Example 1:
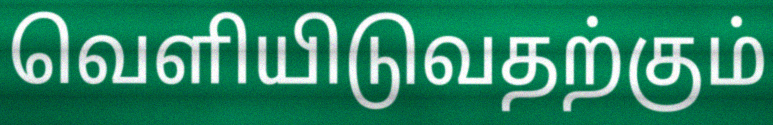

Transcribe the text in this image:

வெளியிடுவதற்கும்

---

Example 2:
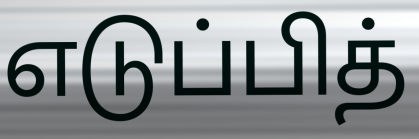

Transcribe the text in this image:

எடுப்பித்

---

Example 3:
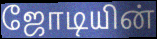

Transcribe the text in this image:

ஜோடியின்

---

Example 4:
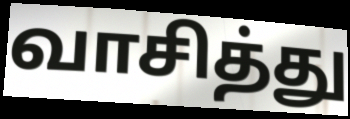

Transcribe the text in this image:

வாசித்து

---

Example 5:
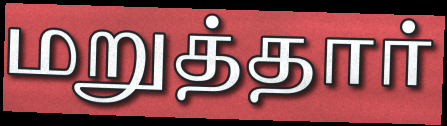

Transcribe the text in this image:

மறுத்தார்